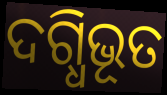
ଦଗ୍ଧିଭୂତ